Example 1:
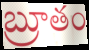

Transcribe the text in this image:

బ్రూతం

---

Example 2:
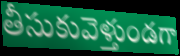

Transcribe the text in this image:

తీసుకువెళ్తుండగా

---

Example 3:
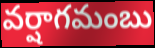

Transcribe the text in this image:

వర్షాగమంబు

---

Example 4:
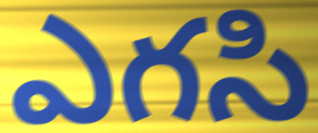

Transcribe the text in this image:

ఎగసి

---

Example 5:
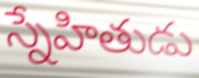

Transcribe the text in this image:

స్నేహితుడు